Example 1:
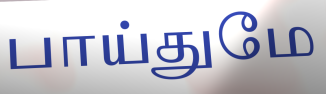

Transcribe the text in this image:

பாய்துமே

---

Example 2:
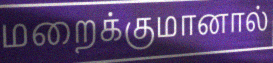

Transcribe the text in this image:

மறைக்குமானால்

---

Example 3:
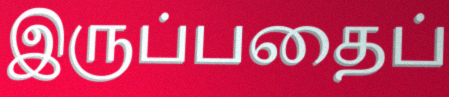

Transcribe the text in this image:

இருப்பதைப்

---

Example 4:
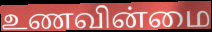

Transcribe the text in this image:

உணவின்மை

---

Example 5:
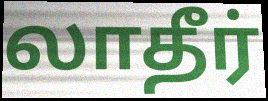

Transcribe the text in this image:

லாதீர்